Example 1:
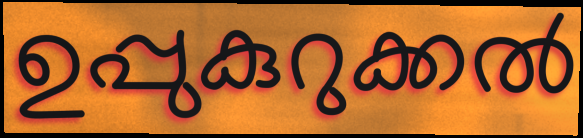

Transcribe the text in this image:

ഉപ്പുകുറുക്കൽ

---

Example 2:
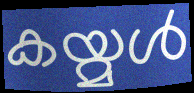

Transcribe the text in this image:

കയ്മൾ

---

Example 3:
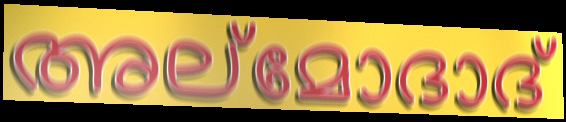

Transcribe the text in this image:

അല്മോദാദ്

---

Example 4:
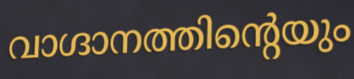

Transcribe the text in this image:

വാഗ്ദാനത്തിന്റെയും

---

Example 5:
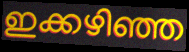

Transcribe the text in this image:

ഇക്കഴിഞ്ഞ